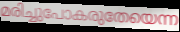
മരിച്ചുപോകരുതേയെന്ന